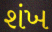
શંખ